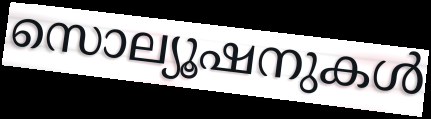
സൊല്യൂഷനുകൾ